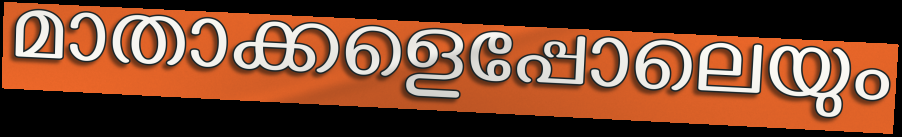
മാതാക്കളെപ്പോലെയും